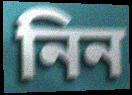
নিন